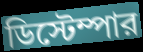
ডিস্টেম্পার